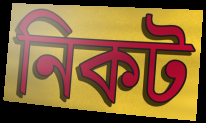
নিকট